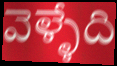
వెళ్ళేది